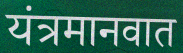
यंत्रमानवात